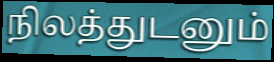
நிலத்துடனும்